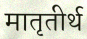
मातृतीर्थ